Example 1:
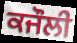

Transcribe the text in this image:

ਕਜੌਲੀ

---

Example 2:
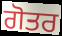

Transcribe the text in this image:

ਗੋਤਰ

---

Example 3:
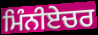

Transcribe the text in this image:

ਮਿੰਨੀਏਚਰ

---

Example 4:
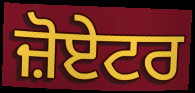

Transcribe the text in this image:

ਜ਼ੋਏਟਰ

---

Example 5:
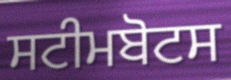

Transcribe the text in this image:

ਸਟੀਮਬੋਟਸ